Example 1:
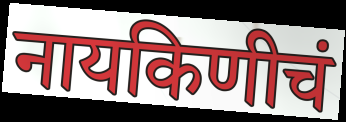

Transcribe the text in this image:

नायकिणीचं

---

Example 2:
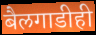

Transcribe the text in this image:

बैलगाडीही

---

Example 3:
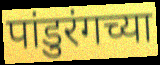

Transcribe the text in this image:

पांडुरंगच्या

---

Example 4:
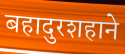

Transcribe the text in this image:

बहादुरशहाने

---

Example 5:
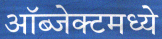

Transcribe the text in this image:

ऑब्जेक्टमध्ये